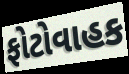
ફોટોવાહક